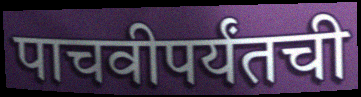
पाचवीपर्यंतची